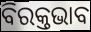
ବିରକ୍ତଭାବ